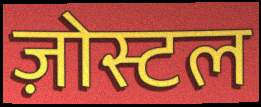
ज़ोस्टल